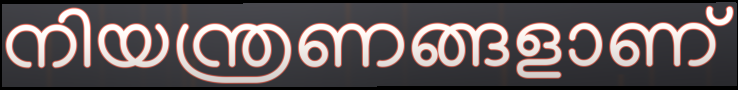
നിയന്ത്രണങ്ങളാണ്